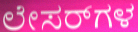
ಲೇಸರ್‌ಗಳ